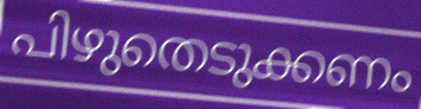
പിഴുതെടുക്കണം